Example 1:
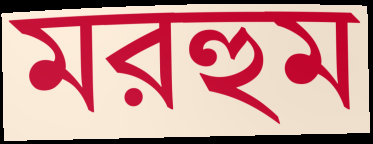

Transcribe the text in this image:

মরহুম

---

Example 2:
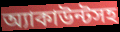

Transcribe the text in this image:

অ্যাকাউন্টসহ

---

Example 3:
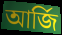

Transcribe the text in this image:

আর্জি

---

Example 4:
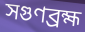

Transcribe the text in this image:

সগুণব্রহ্ম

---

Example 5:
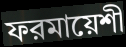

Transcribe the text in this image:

ফরমায়েশী